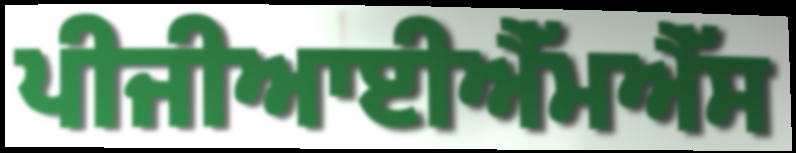
ਪੀਜੀਆਈਐੱਮਐੱਸ